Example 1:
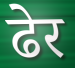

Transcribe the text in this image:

ढेर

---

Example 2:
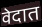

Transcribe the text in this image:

वेदात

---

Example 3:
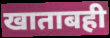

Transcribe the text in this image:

खाताबही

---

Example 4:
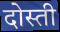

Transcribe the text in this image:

दोस्ती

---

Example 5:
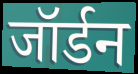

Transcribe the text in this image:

जॉर्डन